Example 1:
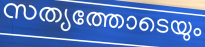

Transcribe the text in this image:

സത്യത്തോടെയും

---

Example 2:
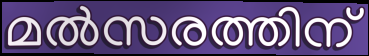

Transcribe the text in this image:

മൽസരത്തിന്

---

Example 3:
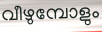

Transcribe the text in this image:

വീഴുമ്പോളും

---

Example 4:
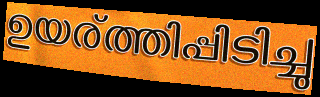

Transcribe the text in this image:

ഉയര്ത്തിപ്പിടിച്ചു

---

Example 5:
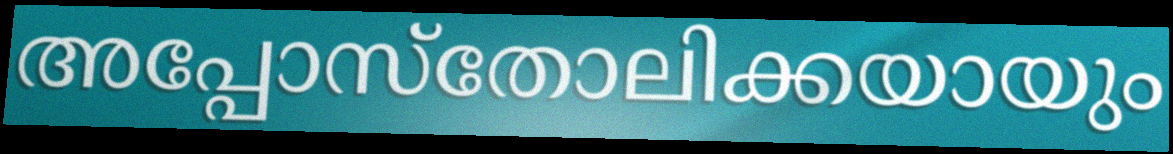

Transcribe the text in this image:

അപ്പോസ്തോലിക്കയായും